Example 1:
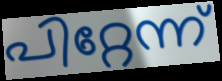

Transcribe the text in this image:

പിറ്റേന്ന്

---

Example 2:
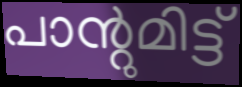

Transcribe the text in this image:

പാന്റുമിട്ട്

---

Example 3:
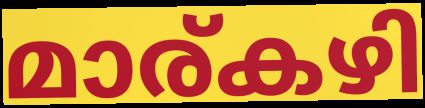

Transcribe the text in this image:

മാര്കഴി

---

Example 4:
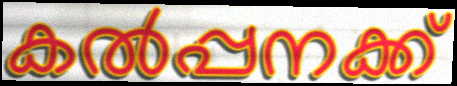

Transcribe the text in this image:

കൽപ്പനക്ക്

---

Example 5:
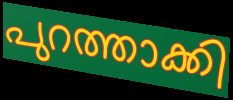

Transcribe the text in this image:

പുറത്താക്കി